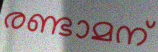
രണ്ടാമന്